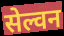
सेल्वन